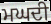
ਮਘਦੀ